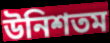
উনিশতম